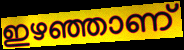
ഇഴഞ്ഞാണ്